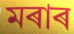
মৰাৰ